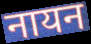
नायन